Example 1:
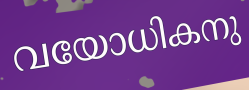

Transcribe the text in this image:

വയോധികനു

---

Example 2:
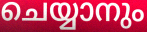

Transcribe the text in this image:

ചെയ്യാനും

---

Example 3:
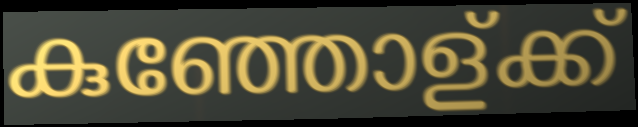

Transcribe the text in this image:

കുഞ്ഞോള്ക്ക്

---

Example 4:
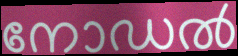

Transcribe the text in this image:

നോഡൽ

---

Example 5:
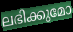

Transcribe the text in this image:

ലഭിക്കുമോ